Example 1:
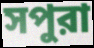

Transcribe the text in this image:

সপুরা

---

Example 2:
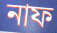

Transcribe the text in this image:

নাফ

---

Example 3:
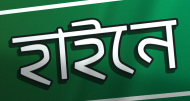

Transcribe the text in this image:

হাইনে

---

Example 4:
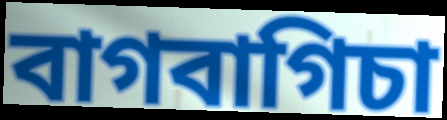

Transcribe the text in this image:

বাগবাগিচা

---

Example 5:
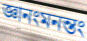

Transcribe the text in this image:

জ্ঞানংমনন্তং